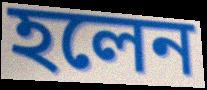
হলেন